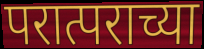
परात्पराच्या